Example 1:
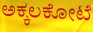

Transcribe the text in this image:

ಅಕ್ಕಲಕೋಟೆ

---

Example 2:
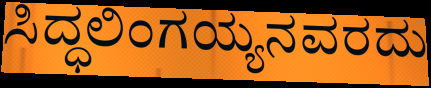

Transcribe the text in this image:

ಸಿದ್ಧಲಿಂಗಯ್ಯನವರದು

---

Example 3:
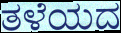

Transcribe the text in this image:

ತಳೆಯದ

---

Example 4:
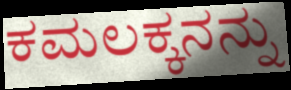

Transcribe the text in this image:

ಕಮಲಕ್ಕನನ್ನು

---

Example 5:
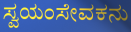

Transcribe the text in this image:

ಸ್ವಯಂಸೇವಕನು